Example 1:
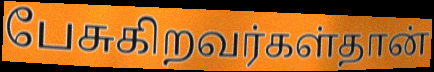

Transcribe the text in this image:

பேசுகிறவர்கள்தான்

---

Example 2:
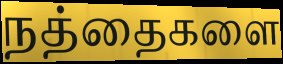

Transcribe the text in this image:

நத்தைகளை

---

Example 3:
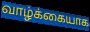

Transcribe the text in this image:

வாழ்க்கையாக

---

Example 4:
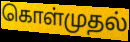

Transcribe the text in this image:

கொள்முதல்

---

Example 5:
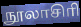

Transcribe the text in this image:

நூலாசிரி